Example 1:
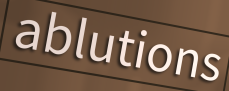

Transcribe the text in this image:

ablutions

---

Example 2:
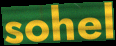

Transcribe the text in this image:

sohel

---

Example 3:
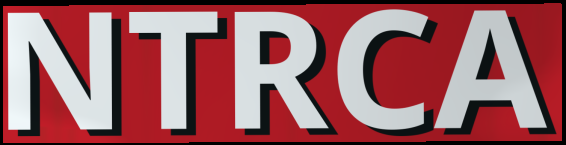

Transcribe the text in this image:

NTRCA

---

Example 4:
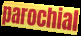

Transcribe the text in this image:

parochial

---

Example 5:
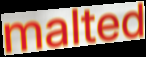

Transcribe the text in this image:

malted